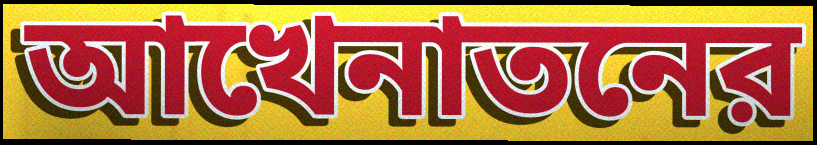
আখেনাতনের